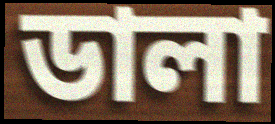
ডালা